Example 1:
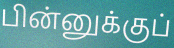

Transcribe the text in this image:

பின்னுக்குப்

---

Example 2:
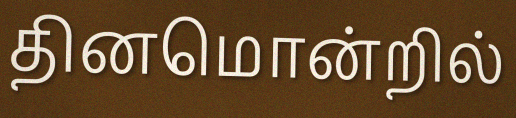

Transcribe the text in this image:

தினமொன்றில்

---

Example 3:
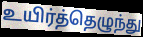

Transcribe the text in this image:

உயிர்த்தெழுந்து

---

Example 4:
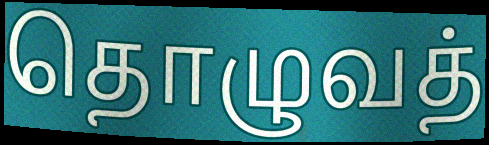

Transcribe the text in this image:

தொழுவத்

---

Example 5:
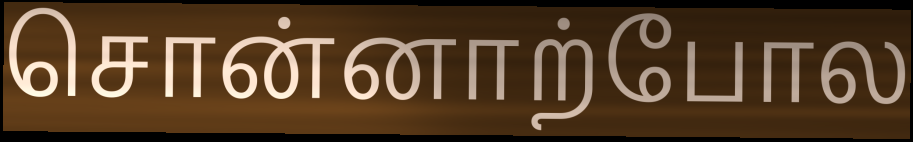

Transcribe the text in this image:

சொன்னாற்போல